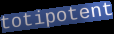
totipotent